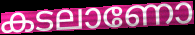
കടലാണോ